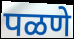
पळणे